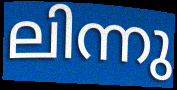
ലിന്നു